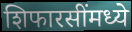
शिफारसींमध्ये